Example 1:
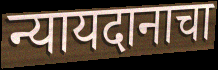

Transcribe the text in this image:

न्यायदानाचा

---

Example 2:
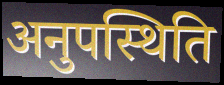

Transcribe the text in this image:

अनुपस्थिति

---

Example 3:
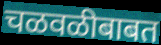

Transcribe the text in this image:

चळवळीबाबत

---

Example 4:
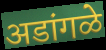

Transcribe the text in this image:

अडांगळे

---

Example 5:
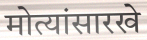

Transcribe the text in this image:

मोत्यांसारखे